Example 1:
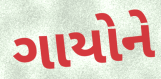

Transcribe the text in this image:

ગાયોને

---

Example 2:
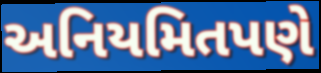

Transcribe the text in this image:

અનિયમિતપણે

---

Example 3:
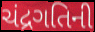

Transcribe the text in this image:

ચંદ્રગતિની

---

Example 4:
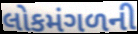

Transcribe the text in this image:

લોકમંગળની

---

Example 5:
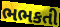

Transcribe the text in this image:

ભભકતી